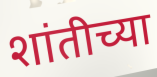
शांतीच्या